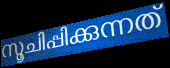
സൂചിപ്പിക്കുന്നത്